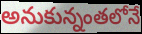
అనుకున్నంతలోనే